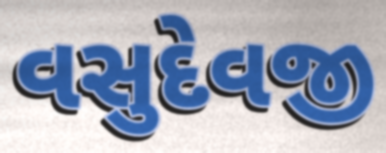
વસુદેવજી